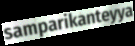
samparikanteyya